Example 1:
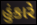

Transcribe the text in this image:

હુંકારે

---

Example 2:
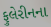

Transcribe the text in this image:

ફુલેરીનના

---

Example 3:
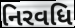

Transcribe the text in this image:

નિરવધિ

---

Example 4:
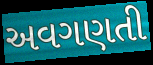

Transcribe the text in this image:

અવગણતી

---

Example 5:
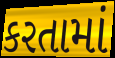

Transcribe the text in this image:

કરતામાં